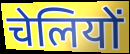
चेलियों